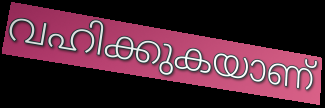
വഹിക്കുകയാണ്